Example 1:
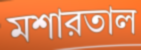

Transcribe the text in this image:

মশারতাল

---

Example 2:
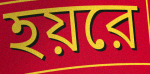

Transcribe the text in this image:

হয়রে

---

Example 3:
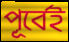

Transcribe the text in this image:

পূর্বেই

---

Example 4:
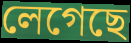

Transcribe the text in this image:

লেগেছে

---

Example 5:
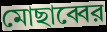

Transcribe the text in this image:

মোছাব্বের